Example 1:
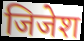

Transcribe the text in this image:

जिजेश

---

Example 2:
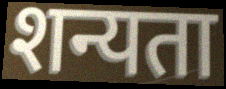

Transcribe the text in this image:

शन्यता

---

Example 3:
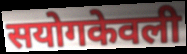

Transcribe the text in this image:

सयोगकेवली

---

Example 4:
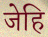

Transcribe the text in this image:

जेहि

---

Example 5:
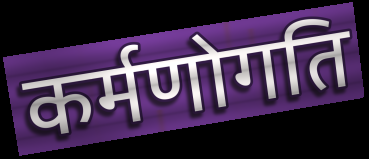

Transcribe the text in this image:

कर्मणोगति